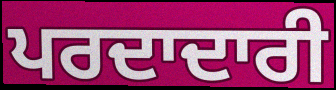
ਪਰਦਾਦਾਰੀ